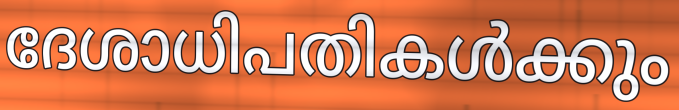
ദേശാധിപതികൾക്കും